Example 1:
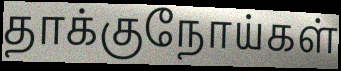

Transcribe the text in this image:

தாக்குநோய்கள்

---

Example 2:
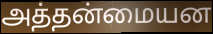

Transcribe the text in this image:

அத்தன்மையன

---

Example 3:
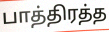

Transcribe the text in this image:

பாத்திரத்த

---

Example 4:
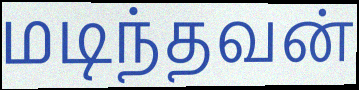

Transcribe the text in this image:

மடிந்தவன்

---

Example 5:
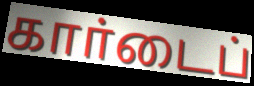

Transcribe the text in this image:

கார்டைப்